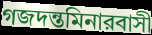
গজদন্তমিনারবাসী